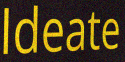
Ideate